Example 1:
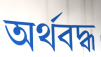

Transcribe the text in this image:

অর্থবদ্ধ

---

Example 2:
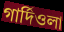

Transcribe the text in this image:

গার্দিওলা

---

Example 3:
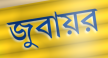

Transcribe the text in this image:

জুবায়র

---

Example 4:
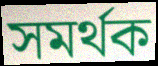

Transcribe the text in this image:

সমর্থক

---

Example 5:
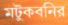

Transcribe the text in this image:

মটুকবনির